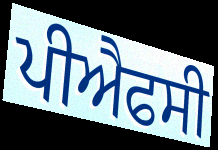
ਪੀਐਫਸੀ